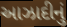
આઝાદીનું